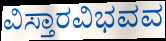
ವಿಸ್ತಾರವಿಭವವ